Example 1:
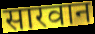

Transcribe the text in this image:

सारवान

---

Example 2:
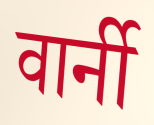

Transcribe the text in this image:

वार्नी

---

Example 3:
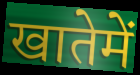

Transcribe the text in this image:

खातेमें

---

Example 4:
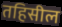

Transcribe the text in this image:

तहिसील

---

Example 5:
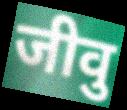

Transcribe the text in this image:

जीवु